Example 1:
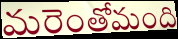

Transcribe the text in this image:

మరెంతోమంది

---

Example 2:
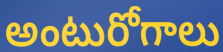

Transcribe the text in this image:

అంటురోగాలు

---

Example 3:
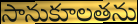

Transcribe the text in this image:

సానుకూలతను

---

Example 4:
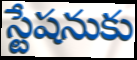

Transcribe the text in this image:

స్టేషనుకు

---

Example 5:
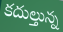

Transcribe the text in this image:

కదుల్తున్న